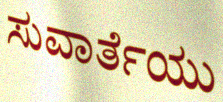
ಸುವಾರ್ತೆಯು